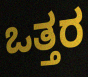
ಒತ್ತರ